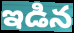
ఇడిన